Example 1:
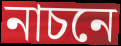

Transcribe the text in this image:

নাচনে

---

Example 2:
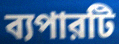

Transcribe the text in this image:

ব্যপারটি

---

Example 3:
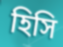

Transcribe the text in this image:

হিসি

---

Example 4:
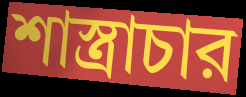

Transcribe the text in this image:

শাস্ত্রাচার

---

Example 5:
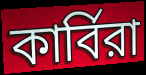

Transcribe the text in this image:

কার্বিরা